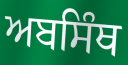
ਅਬਸਿੰਥ